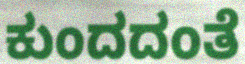
ಕುಂದದಂತೆ